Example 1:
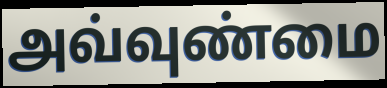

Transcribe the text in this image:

அவ்வுண்மை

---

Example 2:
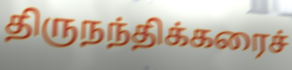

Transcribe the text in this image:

திருநந்திக்கரைச்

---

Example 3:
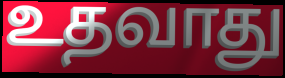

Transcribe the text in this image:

உதவாது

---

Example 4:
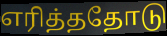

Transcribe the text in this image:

எரித்ததோடு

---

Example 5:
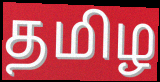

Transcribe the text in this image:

தமிழ